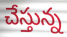
చేస్తున్న